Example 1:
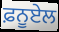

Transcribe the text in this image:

ਫ਼ਨੂਏਲ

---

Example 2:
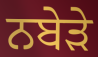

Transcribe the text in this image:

ਨਬੇੜੇ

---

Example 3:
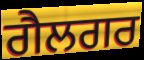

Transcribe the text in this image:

ਗੈਲਗਰ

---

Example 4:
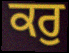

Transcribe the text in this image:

ਕਰੁ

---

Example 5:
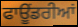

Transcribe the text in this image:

ਫਾਊਂਡਰੀਆਂ